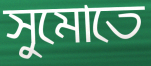
সুমোতে